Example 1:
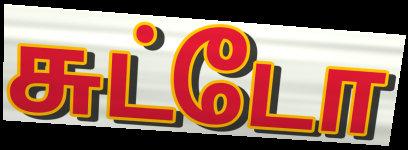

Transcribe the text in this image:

சுட்டோ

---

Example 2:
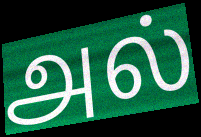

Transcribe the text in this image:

அல்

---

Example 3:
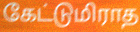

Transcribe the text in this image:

கேட்டுமிராத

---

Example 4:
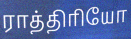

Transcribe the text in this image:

ராத்திரியோ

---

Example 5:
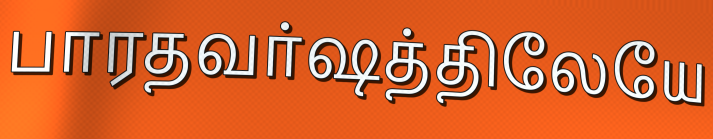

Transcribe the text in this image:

பாரதவர்ஷத்திலேயே